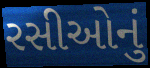
રસીઓનું